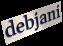
debjani